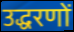
उद्धरणों